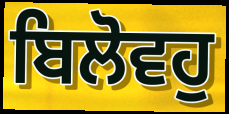
ਬਿਲੋਵਹੁ